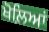
ਖੋਲ਼ਿਆਂ